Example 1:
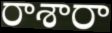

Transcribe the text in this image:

రాశారా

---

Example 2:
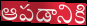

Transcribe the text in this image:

ఆపడానికి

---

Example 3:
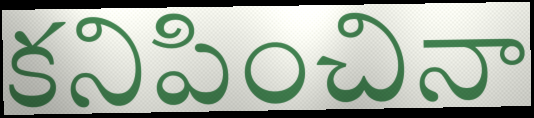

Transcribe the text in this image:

కనిపించినా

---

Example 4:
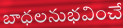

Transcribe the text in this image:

బాధలనుభవించే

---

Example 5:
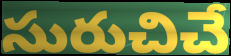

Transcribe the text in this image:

సురుచిచే